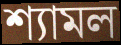
শ্যামল